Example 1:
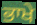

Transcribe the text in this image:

ਭਾਖੇ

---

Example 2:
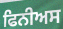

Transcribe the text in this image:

ਫਿਨੀਅਸ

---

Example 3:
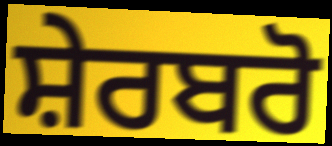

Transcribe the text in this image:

ਸ਼ੇਰਬਰੋ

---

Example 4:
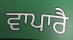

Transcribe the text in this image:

ਵਾਪਾਰੈ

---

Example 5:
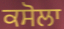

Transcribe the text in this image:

ਕਸੋਲਾ